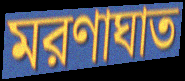
মরণাঘাত